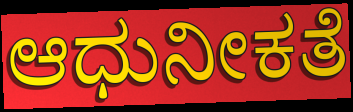
ಆಧುನೀಕತೆ